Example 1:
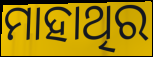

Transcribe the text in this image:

ମାହାଥିର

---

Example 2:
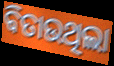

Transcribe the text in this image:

ବିତାଉଥିଲା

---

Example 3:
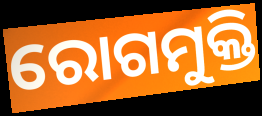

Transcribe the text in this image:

ରୋଗମୁକ୍ତି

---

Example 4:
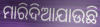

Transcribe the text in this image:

ମାରିଦିଆଯାଉଛି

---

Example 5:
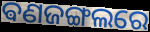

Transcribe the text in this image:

ଵଣଜଙ୍ଗଲରେ